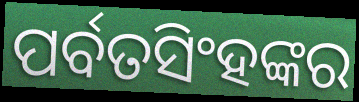
ପର୍ବତସିଂହଙ୍କର